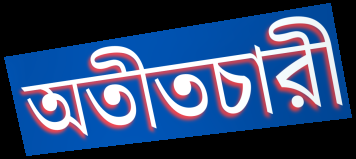
অতীতচারী